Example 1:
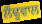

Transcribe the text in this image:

ਲੌਢੂਵਾਲ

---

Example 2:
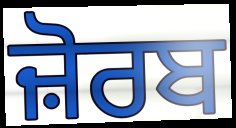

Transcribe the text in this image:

ਜ਼ੋਰਬ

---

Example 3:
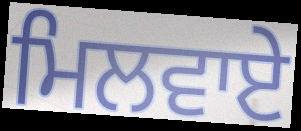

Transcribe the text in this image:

ਮਿਲਵਾਏ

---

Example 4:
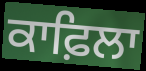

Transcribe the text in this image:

ਕਾਫ਼ਿਲਾ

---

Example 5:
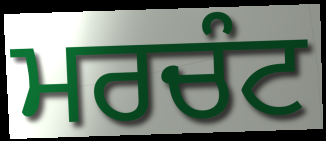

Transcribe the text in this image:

ਮਰਚੰਟ